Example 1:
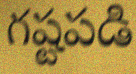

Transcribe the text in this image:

గష్టపడి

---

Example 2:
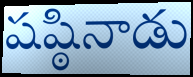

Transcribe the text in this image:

షష్ఠినాడు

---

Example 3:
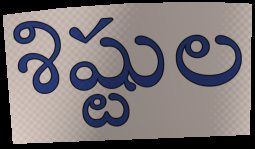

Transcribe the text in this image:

శిష్టుల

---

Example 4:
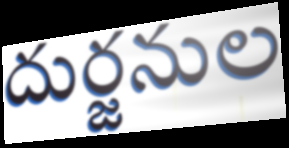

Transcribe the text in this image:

దుర్జనుల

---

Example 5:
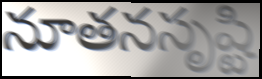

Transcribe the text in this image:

నూతనసృష్టి